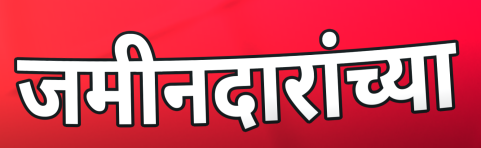
जमीनदारांच्या